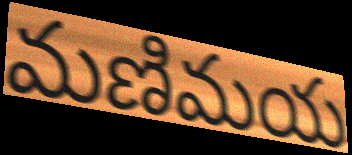
మణిమయ